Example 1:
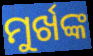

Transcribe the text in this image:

ମୁର୍ଖଙ୍କ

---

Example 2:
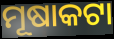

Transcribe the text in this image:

ମୂଷାକଟା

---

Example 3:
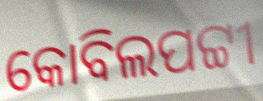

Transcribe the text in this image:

କୋବିଲପଟ୍ଟୀ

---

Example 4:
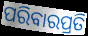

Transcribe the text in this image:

ପରିବାରପ୍ରତି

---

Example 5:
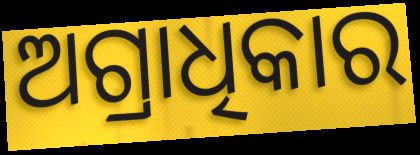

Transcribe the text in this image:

ଅଗ୍ରାଧିକାର